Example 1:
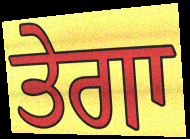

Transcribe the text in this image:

ਤੇਗਾ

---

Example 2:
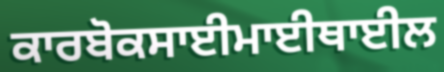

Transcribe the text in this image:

ਕਾਰਬੋਕਸਾਈਮਾਈਥਾਈਲ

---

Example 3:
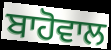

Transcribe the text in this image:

ਬਾਹੋਵਾਲ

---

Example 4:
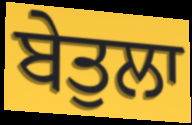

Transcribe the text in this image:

ਬੇਤੁਲਾ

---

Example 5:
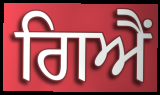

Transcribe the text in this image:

ਗਿਐਂ